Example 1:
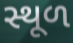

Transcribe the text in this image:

સ્થૂળ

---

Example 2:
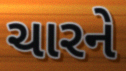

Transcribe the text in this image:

ચારને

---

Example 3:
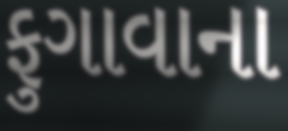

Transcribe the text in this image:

ફુગાવાના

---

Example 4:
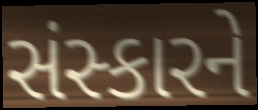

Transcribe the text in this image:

સંસ્કારને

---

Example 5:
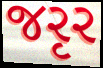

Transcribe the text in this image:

જરૃર